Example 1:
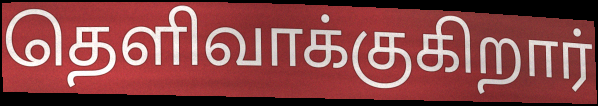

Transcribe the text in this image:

தெளிவாக்குகிறார்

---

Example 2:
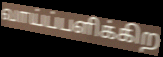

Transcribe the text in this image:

வாய்ப்பளிக்கிற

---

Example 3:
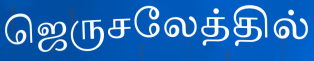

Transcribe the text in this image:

ஜெருசலேத்தில்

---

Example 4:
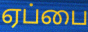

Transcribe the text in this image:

ஏப்பை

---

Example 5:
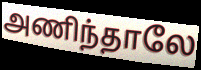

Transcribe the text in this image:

அணிந்தாலே